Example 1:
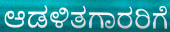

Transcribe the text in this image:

ಆಡಳಿತಗಾರರಿಗೆ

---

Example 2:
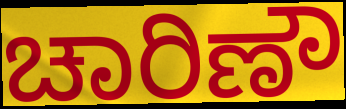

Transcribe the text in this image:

ಚಾರಿಣೌ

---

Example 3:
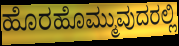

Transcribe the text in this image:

ಹೊರಹೊಮ್ಮುವುದರಲ್ಲಿ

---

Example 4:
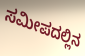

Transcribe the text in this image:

ಸಮೀಪದಲ್ಲಿನ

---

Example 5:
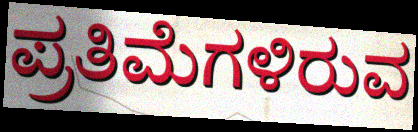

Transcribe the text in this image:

ಪ್ರತಿಮೆಗಳಿರುವ